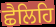
ਛੈਲਿਹਿ